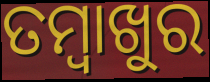
ତମ୍ବାଖୁର